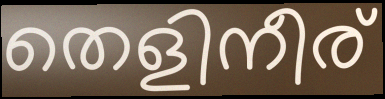
തെളിനീര്